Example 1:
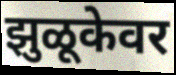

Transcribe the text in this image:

झुळूकेवर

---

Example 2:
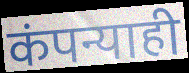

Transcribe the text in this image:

कंपन्याही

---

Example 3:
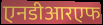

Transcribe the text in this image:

एनडीआरएफ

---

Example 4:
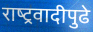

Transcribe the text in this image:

राष्ट्रवादीपुढे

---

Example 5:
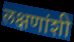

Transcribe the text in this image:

लक्षणांशी